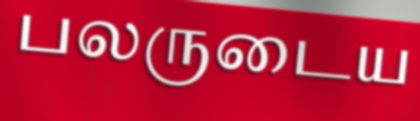
பலருடைய